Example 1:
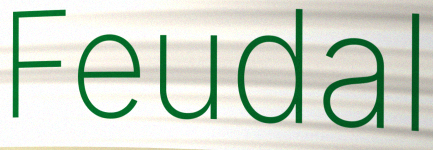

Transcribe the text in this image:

Feudal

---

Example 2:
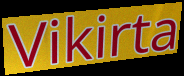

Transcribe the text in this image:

Vikirta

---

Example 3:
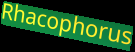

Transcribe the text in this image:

Rhacophorus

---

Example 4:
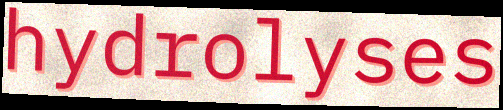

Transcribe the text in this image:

hydrolyses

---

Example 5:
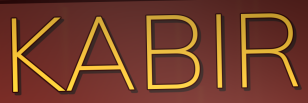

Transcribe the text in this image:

KABIR